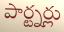
పార్ట్నర్లు